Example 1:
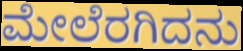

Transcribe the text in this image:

ಮೇಲೆರಗಿದನು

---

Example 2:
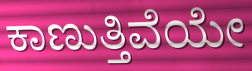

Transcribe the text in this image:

ಕಾಣುತ್ತಿವೆಯೇ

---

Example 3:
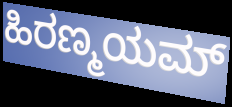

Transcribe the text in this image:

ಹಿರಣ್ಮಯಮ್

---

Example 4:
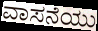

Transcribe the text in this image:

ವಾಸನೆಯು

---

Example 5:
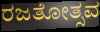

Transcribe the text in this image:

ರಜತೋತ್ಸವ